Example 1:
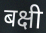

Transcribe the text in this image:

बक्षी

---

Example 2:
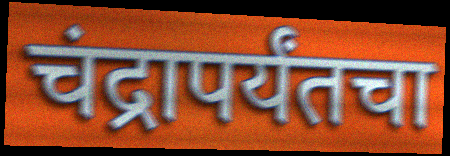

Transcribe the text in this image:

चंद्रापर्यंतचा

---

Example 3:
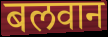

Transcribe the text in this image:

बलवान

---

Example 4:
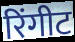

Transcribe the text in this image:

रिंगीट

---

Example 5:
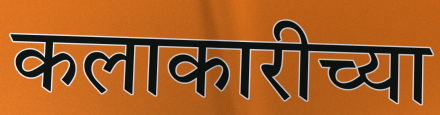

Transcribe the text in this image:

कलाकारीच्या